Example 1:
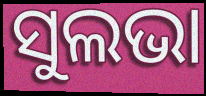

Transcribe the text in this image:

ସୁଲଭା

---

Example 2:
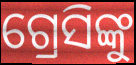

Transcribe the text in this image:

ଗ୍ରେସିଙ୍କୁ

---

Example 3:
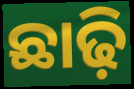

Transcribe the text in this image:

ଛାଢ଼ି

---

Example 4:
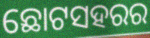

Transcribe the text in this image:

ଛୋଟସହରର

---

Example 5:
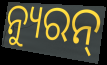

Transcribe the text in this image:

ନ୍ୟୁରନ୍